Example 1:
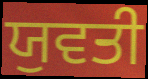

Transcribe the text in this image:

ਯੁਵਤੀ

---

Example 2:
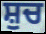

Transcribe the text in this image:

ਸ਼ੁਚ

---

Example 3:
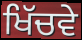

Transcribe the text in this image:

ਖਿੱਚਵੇ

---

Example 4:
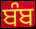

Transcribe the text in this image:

ਬੰਬ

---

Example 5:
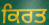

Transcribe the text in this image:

ਕਿਰਤ